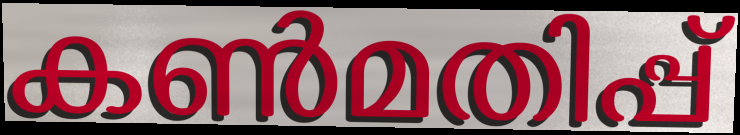
കൺമതിപ്പ്